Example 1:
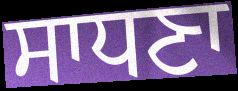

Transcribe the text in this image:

ਸਾਧਣਾ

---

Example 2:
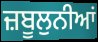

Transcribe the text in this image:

ਜ਼ਬੂਲੁਨੀਆਂ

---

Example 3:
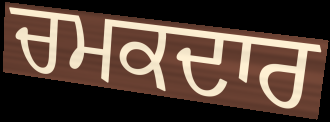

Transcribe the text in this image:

ਚਮਕਦਾਰ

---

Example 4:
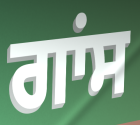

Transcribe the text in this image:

ਗਾਂਸ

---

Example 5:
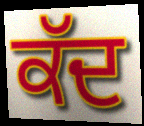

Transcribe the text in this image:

ਕੱਦ